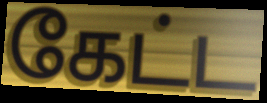
கேட்ட